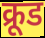
क्रूड